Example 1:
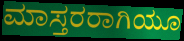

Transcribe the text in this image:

ಮಾಸ್ತರರಾಗಿಯೂ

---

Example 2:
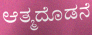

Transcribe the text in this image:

ಆತ್ಮದೊಡನೆ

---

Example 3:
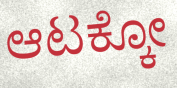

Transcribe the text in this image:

ಆಟಕ್ಕೋ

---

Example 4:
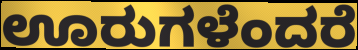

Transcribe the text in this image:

ಊರುಗಳೆಂದರೆ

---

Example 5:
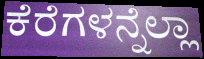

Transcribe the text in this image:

ಕೆರೆಗಳನ್ನೆಲ್ಲಾ